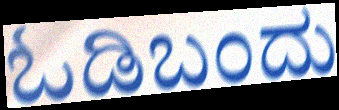
ಓಡಿಬಂದು